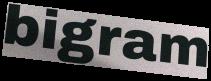
bigram